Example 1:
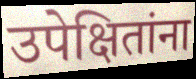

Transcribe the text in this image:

उपेक्षितांना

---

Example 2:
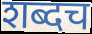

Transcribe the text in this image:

शब्दच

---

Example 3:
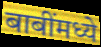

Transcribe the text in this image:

बाबींमध्ये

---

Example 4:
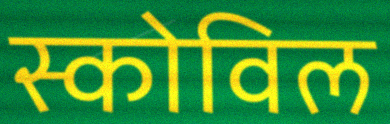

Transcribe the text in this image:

स्कोविल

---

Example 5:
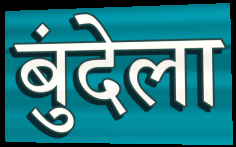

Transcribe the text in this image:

बुंदेला